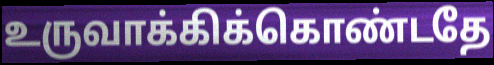
உருவாக்கிக்கொண்டதே